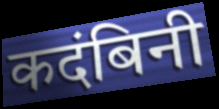
कदंबिनी